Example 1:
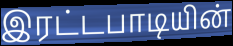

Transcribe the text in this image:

இரட்டபாடியின்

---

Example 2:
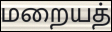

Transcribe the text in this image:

மறையத்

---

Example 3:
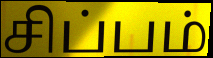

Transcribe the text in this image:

சிப்பம்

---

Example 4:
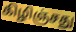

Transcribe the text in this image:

கிழிஞ்சது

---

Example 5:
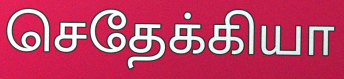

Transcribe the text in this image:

செதேக்கியா